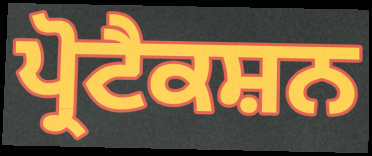
ਪ੍ਰੋਟੈਕਸ਼ਨ